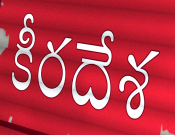
కీరదేశ